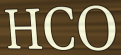
HCO